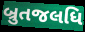
બ્રુતજલધિ